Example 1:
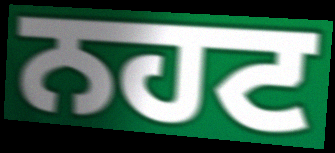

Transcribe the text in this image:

ਨਹਟ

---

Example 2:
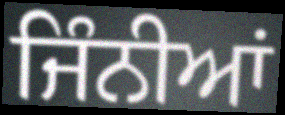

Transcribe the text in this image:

ਜਿੰਨੀਆਂ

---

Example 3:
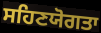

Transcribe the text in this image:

ਸਹਿਣਯੋਗਤਾ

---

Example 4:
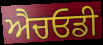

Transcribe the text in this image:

ਐਚਓਡੀ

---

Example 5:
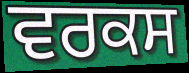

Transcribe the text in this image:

ਵਰਕਸ